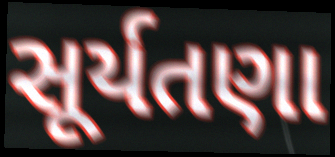
સૂર્યતણા